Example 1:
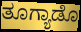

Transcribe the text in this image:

ತೂಗ್ಯಾಡೊ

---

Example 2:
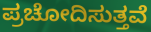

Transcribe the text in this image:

ಪ್ರಚೋದಿಸುತ್ತವೆ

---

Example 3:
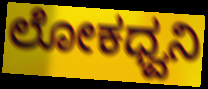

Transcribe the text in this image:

ಲೋಕಧ್ವನಿ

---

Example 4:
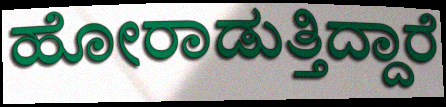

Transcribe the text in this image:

ಹೋರಾಡುತ್ತಿದ್ದಾರೆ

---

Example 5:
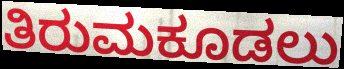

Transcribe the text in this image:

ತಿರುಮಕೂಡಲು